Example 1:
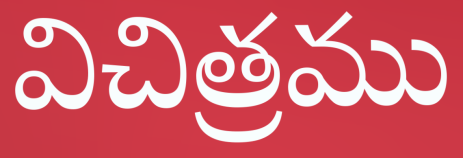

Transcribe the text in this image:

విచిత్రము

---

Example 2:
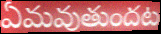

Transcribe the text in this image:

ఏమవుతుందట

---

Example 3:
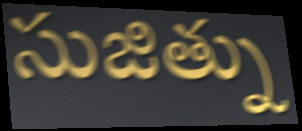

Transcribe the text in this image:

సుజిత్ను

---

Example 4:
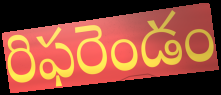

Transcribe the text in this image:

రిఫరెండం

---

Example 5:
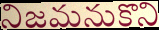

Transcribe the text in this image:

నిజమనుకొని